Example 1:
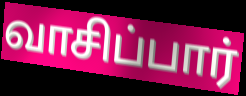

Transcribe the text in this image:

வாசிப்பார்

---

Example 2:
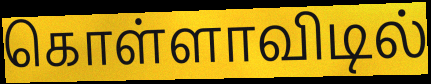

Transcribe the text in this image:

கொள்ளாவிடில்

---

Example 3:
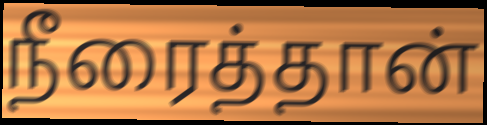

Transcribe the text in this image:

நீரைத்தான்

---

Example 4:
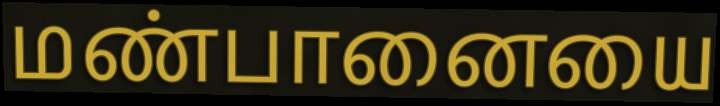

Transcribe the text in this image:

மண்பானையை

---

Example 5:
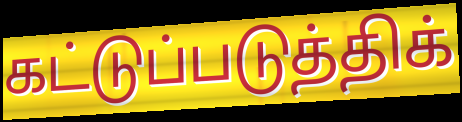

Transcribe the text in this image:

கட்டுப்படுத்திக்